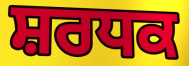
ਸ਼ਰਧਕ